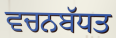
ਵਚਨਬੱਧਤ